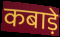
कबाड़े